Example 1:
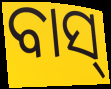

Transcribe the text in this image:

ବାସ୍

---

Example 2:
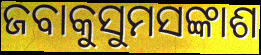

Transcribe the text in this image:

ଜବାକୁସୁମସଙ୍କାଶ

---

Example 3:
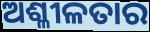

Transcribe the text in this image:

ଅଶ୍ଳୀଳତାର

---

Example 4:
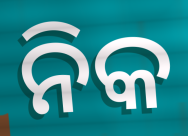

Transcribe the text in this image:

ନିକ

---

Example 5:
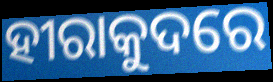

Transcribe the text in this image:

ହୀରାକୁଦରେ